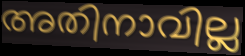
അതിനാവില്ല